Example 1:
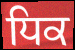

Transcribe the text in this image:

ਧਿਕ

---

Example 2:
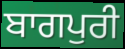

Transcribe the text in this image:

ਬਾਗਪੁਰੀ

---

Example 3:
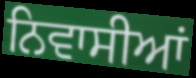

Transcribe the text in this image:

ਨਿਵਾਸੀਆਂ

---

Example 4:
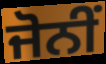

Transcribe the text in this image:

ਜੋਨੀਂ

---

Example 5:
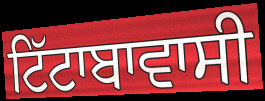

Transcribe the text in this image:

ਟਿੱਟਾਬਾਵਾਸੀ